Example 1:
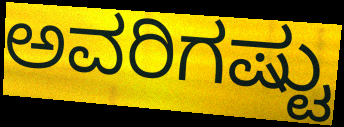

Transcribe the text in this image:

ಅವರಿಗಷ್ಟು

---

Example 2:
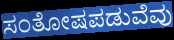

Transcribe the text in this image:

ಸಂತೋಷಪಡುವೆವು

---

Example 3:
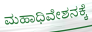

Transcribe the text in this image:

ಮಹಾಧಿವೇಶನಕ್ಕೆ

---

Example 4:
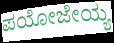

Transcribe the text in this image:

ಪಯೋಜೇಯ್ಯ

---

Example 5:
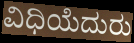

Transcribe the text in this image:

ವಿಧಿಯೆದುರು